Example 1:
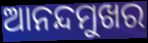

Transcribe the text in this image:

ଆନନ୍ଦମୁଖର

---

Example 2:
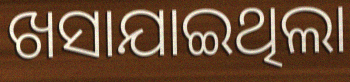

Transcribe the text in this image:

ଖସାଯାଇଥିଲା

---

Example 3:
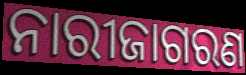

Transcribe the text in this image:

ନାରୀଜାଗରଣ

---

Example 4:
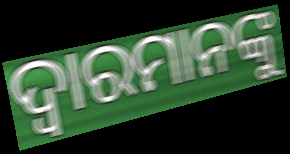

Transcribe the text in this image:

ଦ୍ୱାରମାନଙ୍କୁ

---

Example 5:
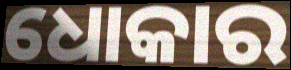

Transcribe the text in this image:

ଧୋକାର